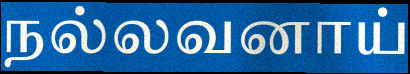
நல்லவனாய்